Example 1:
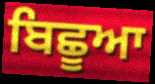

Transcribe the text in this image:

ਬਿਛੂਆ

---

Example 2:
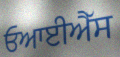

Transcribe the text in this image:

ਓਆਈਐੱਸ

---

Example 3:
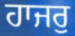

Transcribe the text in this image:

ਹਾਜਰੁ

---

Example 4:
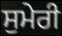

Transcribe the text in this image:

ਸੁਮੇਰੀ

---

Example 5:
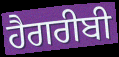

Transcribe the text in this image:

ਹੈਗਰੀਬੀ